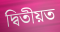
দ্বিতীয়ত